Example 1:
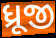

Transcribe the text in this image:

ધ્રૂજી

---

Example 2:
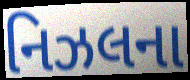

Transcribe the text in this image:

નિઝલના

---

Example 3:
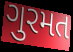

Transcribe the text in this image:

ગુરમત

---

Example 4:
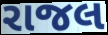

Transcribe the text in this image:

રાજલ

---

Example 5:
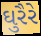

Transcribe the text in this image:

ઘુરૈરે